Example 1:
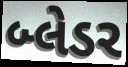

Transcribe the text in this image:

બ્લેડર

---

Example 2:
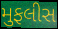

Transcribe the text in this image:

મુફલીસ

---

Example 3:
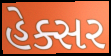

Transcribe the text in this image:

હેક્સર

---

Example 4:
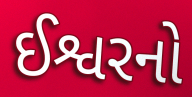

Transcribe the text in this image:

ઈશ્વરનો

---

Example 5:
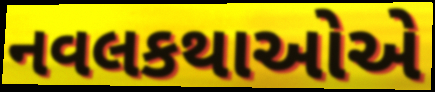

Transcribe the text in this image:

નવલકથાઓએ